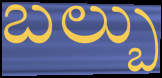
బల్బు